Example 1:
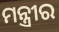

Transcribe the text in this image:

ମନ୍ତ୍ରୀର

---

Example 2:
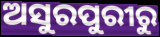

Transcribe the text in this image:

ଅସୁରପୁରୀରୁ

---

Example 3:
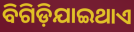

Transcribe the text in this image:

ବିଗିଡ଼ିଯାଇଥାଏ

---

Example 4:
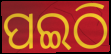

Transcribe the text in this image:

ପଇଠି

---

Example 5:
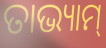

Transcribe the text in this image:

ତାଭ୍ୟାମ୍